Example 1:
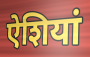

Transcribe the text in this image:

ऐशियां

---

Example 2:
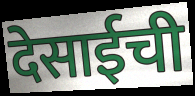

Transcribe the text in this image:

देसाईची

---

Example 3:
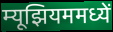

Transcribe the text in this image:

म्यूझियममध्यें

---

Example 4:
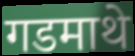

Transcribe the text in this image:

गडमाथे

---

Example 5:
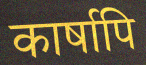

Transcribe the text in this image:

कार्षापि